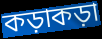
কড়াকড়া